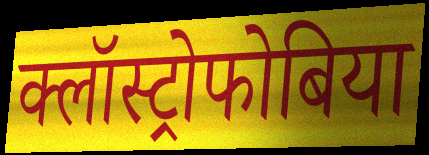
क्लॉस्ट्रोफोबिया